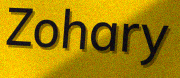
Zohary